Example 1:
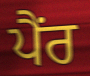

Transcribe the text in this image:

ਪੈਂਰ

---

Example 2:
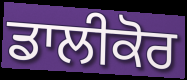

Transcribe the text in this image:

ਡਾਲੀਕੋਰ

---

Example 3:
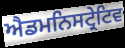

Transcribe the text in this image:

ਐਡਮਨਿਸਟ੍ਰੇਟਿਵ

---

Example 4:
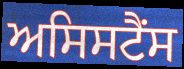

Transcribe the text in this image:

ਅਸਿਸਟੈਂਸ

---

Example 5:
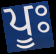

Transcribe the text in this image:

ਪੂਃ